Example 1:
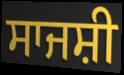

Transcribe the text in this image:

ਸਾਜਸ਼ੀ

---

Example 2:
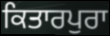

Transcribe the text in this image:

ਕਿਤਾਰਪੁਰਾ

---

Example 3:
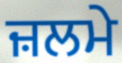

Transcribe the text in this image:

ਜ਼ਲਮੇ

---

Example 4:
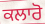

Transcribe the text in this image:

ਕਲਾਰੋ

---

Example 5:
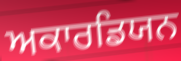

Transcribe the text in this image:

ਅਕਾਰਡਿਯਨ